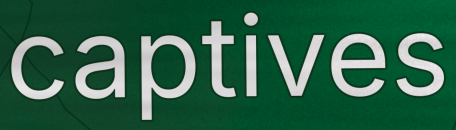
captives